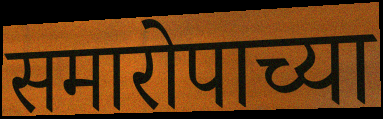
समारोपाच्या